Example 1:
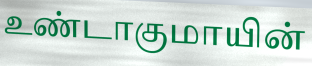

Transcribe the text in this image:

உண்டாகுமாயின்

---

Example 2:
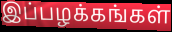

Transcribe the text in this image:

இப்பழக்கங்கள்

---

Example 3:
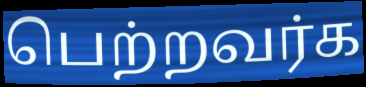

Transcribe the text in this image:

பெற்றவர்க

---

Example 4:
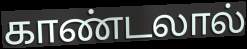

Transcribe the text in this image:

காண்டலால்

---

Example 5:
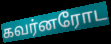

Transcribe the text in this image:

கவர்னரோட